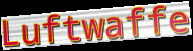
Luftwaffe